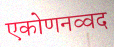
एकोणनव्वद